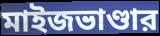
মাইজভাণ্ডার